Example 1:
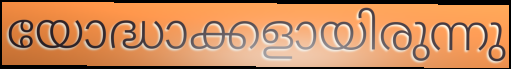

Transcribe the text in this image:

യോദ്ധാക്കളായിരുന്നു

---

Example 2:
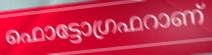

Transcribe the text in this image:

ഫൊട്ടോഗ്രഫറാണ്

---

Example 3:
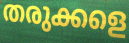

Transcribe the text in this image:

തരുക്കളെ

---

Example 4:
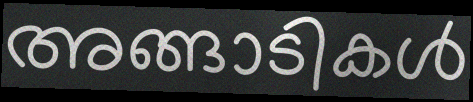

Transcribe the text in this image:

അങ്ങാടികൾ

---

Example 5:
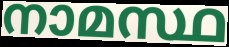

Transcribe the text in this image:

നാമസ്ഥ